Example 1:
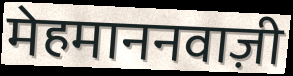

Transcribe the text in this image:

मेहमाननवाज़ी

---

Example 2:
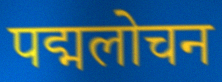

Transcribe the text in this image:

पद्मलोचन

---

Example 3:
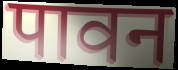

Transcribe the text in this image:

पावन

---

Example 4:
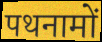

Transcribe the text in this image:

पथनामों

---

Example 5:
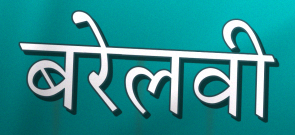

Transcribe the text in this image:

बरेलवी